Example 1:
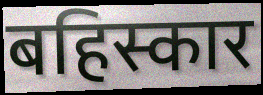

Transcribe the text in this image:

बहिस्कार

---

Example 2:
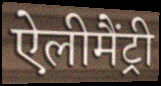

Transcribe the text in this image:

ऐलीमैंट्री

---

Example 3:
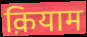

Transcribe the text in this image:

क़ियाम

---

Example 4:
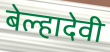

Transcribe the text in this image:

बेल्हादेवी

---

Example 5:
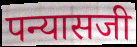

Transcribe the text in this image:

पन्यासजी